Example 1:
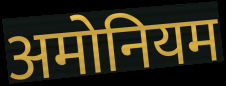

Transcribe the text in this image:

अमोनियम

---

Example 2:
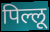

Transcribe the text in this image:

पिल्लू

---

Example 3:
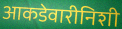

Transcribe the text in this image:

आकडेवारीनिशी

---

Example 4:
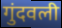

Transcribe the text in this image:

गुंदवली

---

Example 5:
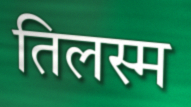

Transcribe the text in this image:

तिलस्म